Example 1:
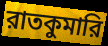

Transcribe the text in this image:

রাতকুমারি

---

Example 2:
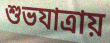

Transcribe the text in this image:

শুভযাত্রায়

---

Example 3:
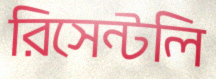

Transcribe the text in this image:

রিসেন্টলি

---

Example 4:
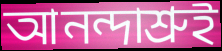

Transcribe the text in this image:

আনন্দাশ্রুই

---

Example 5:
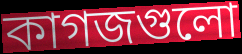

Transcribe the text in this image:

কাগজগুলো